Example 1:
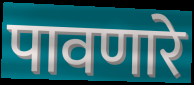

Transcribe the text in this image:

पावणारे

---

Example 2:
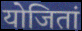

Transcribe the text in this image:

योजितां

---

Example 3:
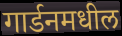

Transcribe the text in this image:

गार्डनमधील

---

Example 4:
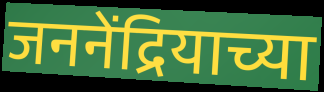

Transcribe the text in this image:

जननेंद्रियाच्या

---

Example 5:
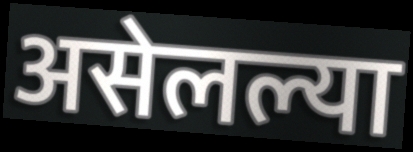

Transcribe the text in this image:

असेलल्या